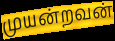
முயன்றவன்